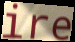
ire